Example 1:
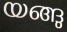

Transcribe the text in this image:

യങ്ങു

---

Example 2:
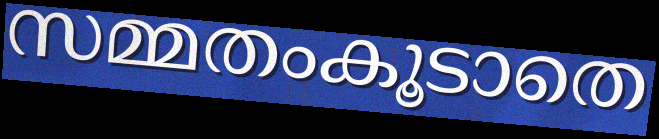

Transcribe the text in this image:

സമ്മതംകൂടാതെ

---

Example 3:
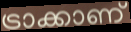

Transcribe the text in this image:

ട്രാക്കാണ്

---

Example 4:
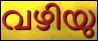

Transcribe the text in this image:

വഴിയു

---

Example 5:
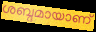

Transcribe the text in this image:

ശബ്ദമായാണ്